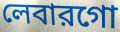
লেবারগো